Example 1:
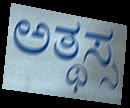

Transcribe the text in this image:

ಅತ್ಥಸ್ಸ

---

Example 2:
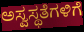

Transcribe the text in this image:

ಅಸ್ವಸ್ಥತೆಗಳಿಗೆ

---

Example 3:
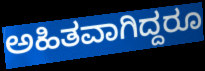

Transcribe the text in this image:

ಅಹಿತವಾಗಿದ್ದರೂ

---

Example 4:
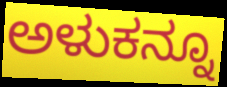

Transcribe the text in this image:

ಅಳುಕನ್ನೂ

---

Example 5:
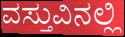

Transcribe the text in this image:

ವಸ್ತುವಿನಲ್ಲಿ